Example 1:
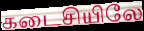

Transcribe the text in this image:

கடைசியிலே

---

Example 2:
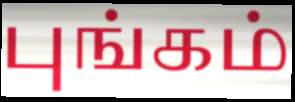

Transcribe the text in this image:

புங்கம்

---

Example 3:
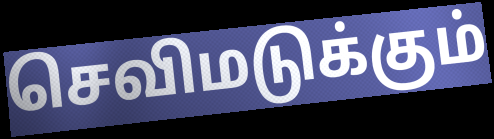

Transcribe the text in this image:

செவிமடுக்கும்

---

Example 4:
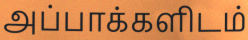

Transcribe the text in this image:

அப்பாக்களிடம்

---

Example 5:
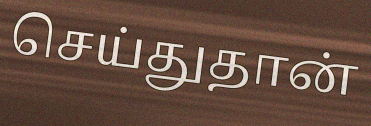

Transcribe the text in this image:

செய்துதான்